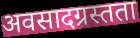
अवसादग्रस्तता